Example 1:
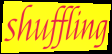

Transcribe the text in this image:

shuffling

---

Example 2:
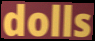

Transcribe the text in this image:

dolls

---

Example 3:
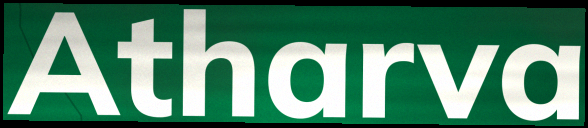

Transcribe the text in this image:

Atharva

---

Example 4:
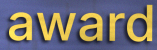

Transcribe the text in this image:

award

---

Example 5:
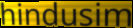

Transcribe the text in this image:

hindusim